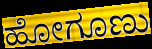
ಹೋಗೂಣು